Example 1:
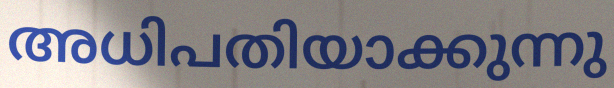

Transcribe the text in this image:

അധിപതിയാക്കുന്നു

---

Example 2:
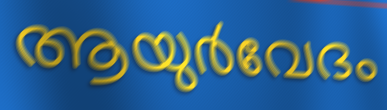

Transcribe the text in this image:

ആയുർവേദം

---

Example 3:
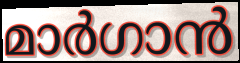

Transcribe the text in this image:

മാർഗാൻ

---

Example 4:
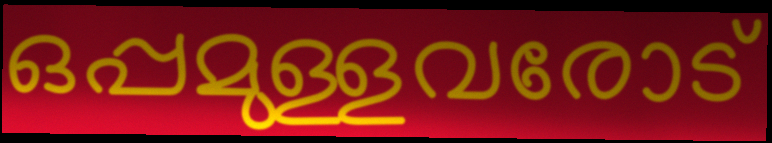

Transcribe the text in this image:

ഒപ്പമുള്ളവരോട്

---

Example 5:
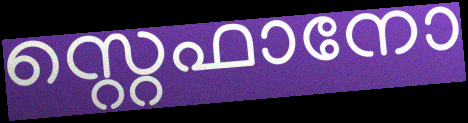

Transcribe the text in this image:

സ്റ്റെഫാനോ